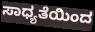
ಸಾಧ್ಯತೆಯಿಂದ